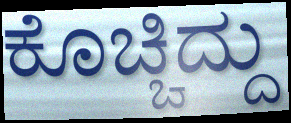
ಕೊಚ್ಚಿದ್ದು